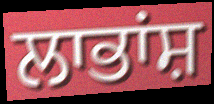
ਲਾਭਾਂਸ਼